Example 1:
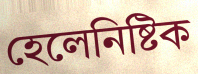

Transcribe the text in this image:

হেলেনিষ্টিক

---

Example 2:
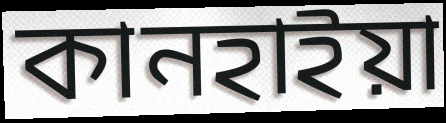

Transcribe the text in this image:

কানহাইয়া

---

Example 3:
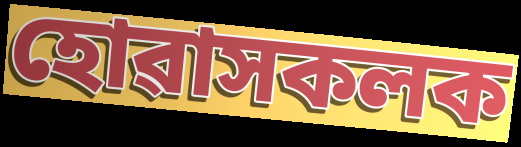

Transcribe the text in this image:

হোৱাসকলক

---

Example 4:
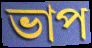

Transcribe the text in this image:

ভাপ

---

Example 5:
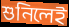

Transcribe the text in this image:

শুনিলেই